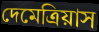
দেমেত্রিয়াস